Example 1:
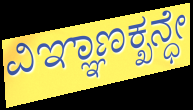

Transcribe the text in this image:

ವಿಞ್ಞಾಣಕ್ಖನ್ಧೇ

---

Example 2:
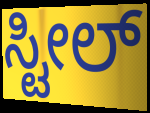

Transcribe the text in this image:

ಸ್ಟೀಲ್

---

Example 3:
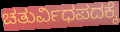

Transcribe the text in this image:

ಚತುರ್ವಿಧಪದಕ್ಕೆ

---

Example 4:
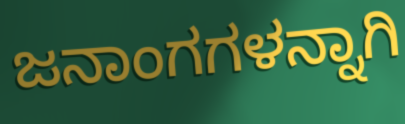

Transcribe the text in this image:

ಜನಾಂಗಗಳನ್ನಾಗಿ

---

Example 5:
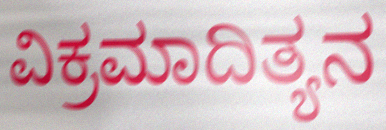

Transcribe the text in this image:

ವಿಕ್ರಮಾದಿತ್ಯನ